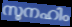
സുനഹിം